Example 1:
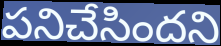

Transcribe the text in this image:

పనిచేసిందని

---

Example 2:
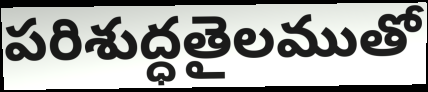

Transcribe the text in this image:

పరిశుద్ధతైలముతో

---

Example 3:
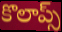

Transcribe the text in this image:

కొలాప్స్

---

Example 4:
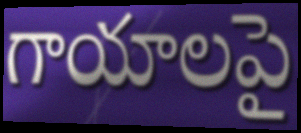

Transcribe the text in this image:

గాయాలపై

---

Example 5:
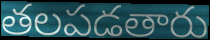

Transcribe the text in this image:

తలపడతారు